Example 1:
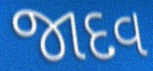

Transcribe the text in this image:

જાદવ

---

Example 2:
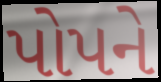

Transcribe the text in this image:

પોપને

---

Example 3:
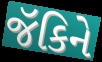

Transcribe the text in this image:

જૅકિને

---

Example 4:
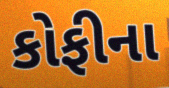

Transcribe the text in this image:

કોફીના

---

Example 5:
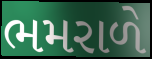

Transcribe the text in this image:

ભમરાળે